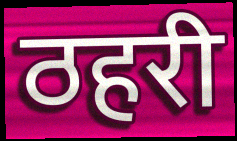
ठहरी